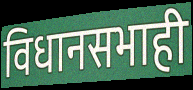
विधानसभाही